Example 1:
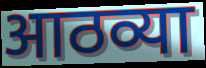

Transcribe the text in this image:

आठव्या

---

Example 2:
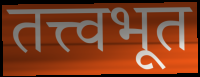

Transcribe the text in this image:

तत्त्वभूत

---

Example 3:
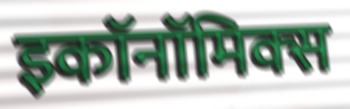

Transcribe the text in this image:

इकॉनॉमिक्‍स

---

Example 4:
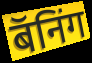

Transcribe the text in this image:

बॅनिंग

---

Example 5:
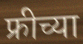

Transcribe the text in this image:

फ्रीच्या